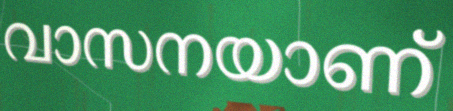
വാസനയാണ്